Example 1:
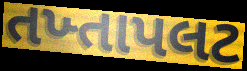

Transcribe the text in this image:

તખ્તાપલટ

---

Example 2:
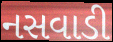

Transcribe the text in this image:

નસવાડી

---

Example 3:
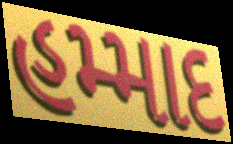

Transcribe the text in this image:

હમ્માદ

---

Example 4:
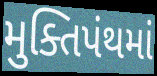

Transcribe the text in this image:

મુક્તિપંથમાં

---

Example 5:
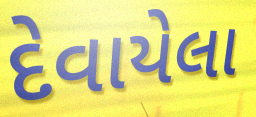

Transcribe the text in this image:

દેવાયેલા